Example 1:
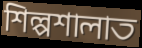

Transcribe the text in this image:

শিল্পশালাত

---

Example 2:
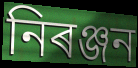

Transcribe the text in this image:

নিৰঞ্জন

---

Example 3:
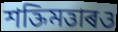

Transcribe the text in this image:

শক্তিমত্তাৰও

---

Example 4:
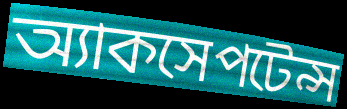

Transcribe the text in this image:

অ্যাকসেপটেন্স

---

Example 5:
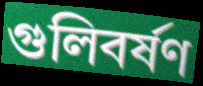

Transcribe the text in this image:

গুলিবৰ্ষণ